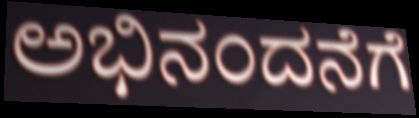
ಅಭಿನಂದನೆಗೆ